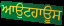
ਆਉਟਹਾਊਸ